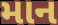
માન